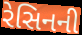
રેસિનની